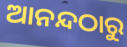
ଆନନ୍ଦଠାରୁ